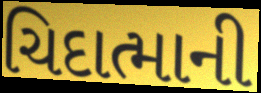
ચિદાત્માની